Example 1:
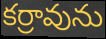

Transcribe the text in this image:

కర్రావును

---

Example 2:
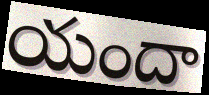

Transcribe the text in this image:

యందా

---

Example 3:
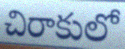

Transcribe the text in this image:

చిరాకులో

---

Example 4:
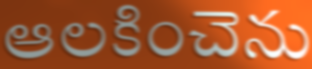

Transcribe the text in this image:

ఆలకించెను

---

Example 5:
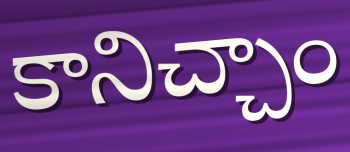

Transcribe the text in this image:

కానిచ్చాం